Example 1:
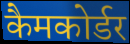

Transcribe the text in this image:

कैमकोर्डर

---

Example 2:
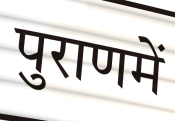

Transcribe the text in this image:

पुराणमें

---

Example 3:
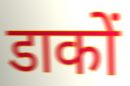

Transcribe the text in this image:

डाकों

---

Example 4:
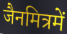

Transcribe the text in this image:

जैनमित्रमें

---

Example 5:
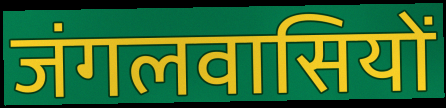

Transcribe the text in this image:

जंगलवासियों